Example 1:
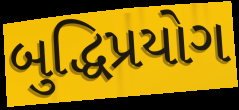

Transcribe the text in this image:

બુદ્ધિપ્રયોગ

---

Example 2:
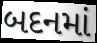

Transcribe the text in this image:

બદનમાં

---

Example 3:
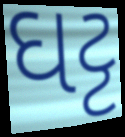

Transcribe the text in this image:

ઘટ્ટ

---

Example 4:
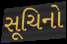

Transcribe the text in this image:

સૂચિનો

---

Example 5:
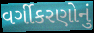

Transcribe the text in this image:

વર્ગીકરણોનું